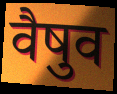
वैषुव